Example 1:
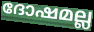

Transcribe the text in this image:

ദോഷമല്ല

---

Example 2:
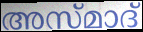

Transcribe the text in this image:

അസ്മാദ്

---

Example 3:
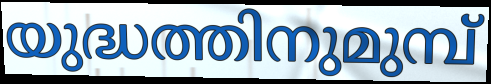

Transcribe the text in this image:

യുദ്ധത്തിനുമുമ്പ്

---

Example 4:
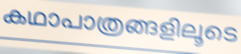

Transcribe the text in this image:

കഥാപാത്രങ്ങളിലൂടെ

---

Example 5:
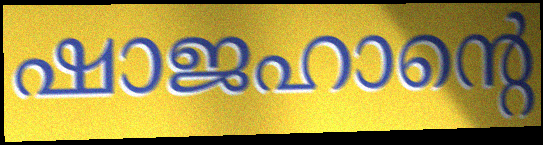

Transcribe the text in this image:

ഷാജഹാന്റെ